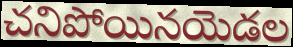
చనిపోయినయెడల